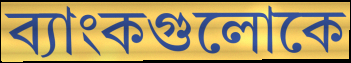
ব্যাংকগুলোকে